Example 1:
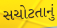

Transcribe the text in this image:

સચોટતાનું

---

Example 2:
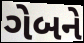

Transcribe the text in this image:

ગેબને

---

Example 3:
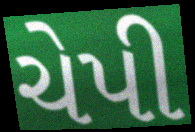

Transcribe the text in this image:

ચેપી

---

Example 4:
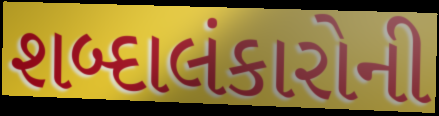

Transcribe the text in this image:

શબ્દાલંકારોની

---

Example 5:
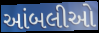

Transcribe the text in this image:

આંબલીઓ